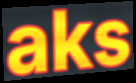
aks